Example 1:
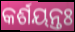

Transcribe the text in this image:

କର୍ଶୟନ୍ତଃ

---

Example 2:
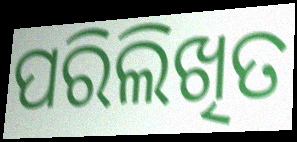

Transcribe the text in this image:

ପରିଲିଖିତ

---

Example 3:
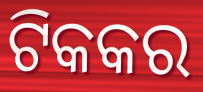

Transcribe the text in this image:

ଟିକକର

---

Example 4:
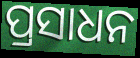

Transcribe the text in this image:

ପ୍ରସାଧନ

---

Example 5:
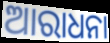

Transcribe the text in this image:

ଆରାଧନା